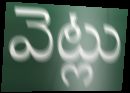
వెట్లు